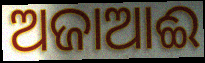
ଅଜାଆଈ